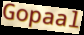
Gopaal